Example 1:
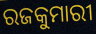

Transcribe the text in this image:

ରଜକୁମାରୀ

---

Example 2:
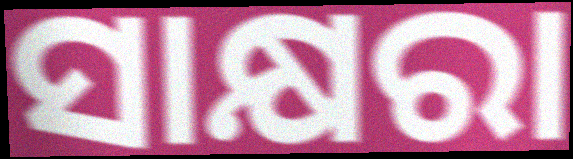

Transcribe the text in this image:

ସାକ୍ଷରା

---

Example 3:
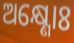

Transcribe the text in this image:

ଅକ୍ଷ୍ଣୋଃ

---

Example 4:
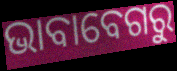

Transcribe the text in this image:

ଭାବାବେଗରୁ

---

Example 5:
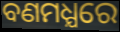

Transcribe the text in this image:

ବଣମଧ୍ଯରେ